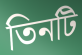
তিনটি